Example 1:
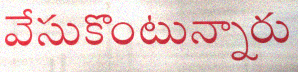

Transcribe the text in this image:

వేసుకొంటున్నారు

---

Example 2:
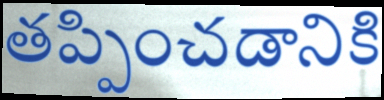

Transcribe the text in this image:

తప్పించడానికి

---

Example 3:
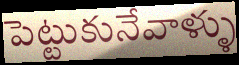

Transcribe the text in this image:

పెట్టుకునేవాళ్ళు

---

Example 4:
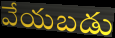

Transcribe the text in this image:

వేయబడు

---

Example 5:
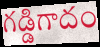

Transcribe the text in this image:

గడ్డిగాదం